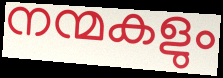
നന്മകളും